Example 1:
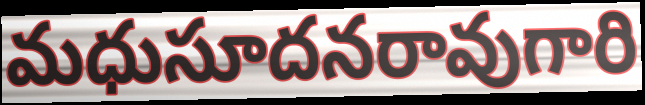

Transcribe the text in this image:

మధుసూదనరావుగారి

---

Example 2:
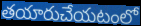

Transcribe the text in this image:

తయారుచేయటంలో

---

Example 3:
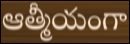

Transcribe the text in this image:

ఆత్మీయంగా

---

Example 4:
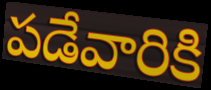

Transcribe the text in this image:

పడేవారికి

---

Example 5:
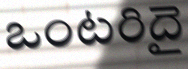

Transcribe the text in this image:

ఒంటరిదై